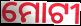
ମୋଟୀ